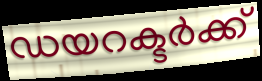
ഡയറക്ടർക്ക്